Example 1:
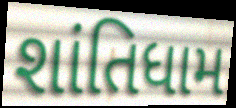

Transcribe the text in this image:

શાંતિધામ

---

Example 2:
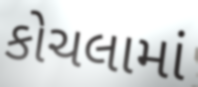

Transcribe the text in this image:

કોચલામાં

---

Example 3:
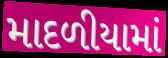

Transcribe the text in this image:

માદળીયામાં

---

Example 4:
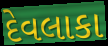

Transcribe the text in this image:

દેવલાકા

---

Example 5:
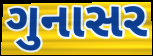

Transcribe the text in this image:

ગુનાસર